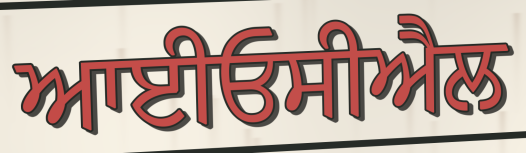
ਆਈਓਸੀਐਲ